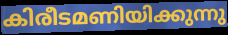
കിരീടമണിയിക്കുന്നു